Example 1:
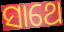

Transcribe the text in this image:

ସାଥେ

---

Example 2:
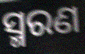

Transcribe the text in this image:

ସ୍ମରଣ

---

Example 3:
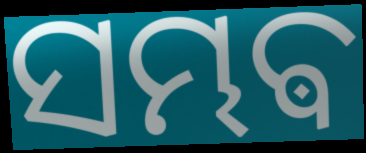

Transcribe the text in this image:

ସମ୍ଭଵ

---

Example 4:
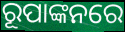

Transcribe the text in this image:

ରୂପାଙ୍କନରେ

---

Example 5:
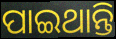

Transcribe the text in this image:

ପାଇଥାନ୍ତି